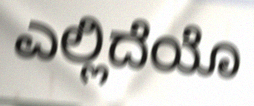
ಎಲ್ಲಿದೆಯೊ